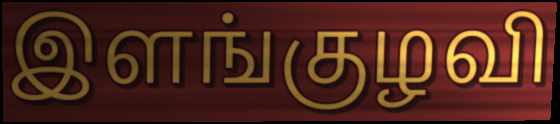
இளங்குழவி